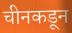
चीनकडून